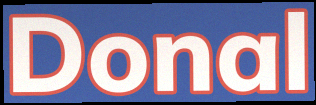
Donal